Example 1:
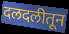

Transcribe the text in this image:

दलदलीतून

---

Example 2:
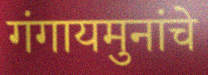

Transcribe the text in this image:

गंगायमुनांचे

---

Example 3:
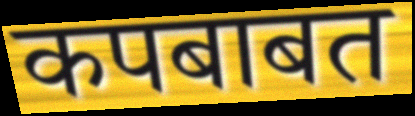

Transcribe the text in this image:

कपबाबत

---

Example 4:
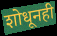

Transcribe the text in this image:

शोधूनही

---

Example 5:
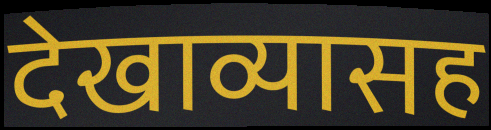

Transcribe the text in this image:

देखाव्यासह